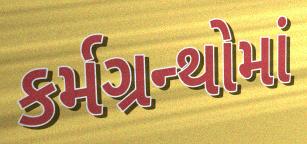
કર્મગ્રન્થોમાં